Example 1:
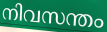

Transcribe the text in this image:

നിവസന്തം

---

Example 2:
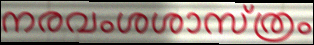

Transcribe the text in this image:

നരവംശശാസ്‌ത്രം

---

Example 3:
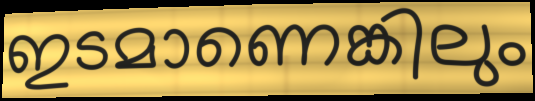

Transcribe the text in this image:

ഇടമാണെങ്കിലും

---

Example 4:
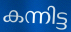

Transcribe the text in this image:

കന്നിട്ട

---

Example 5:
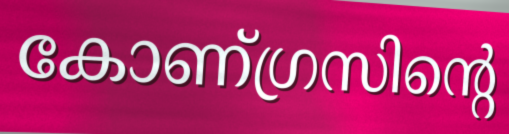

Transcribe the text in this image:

കോണ്ഗ്രസിന്റെ